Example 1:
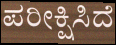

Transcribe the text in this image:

ಪರೀಕ್ಷಿಸಿದೆ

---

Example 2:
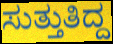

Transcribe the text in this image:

ಸುತ್ತುತಿದ್ದ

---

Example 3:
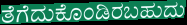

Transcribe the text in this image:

ತೆಗೆದುಕೊಂಡಿರಬಹುದು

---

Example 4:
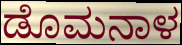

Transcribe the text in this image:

ಡೊಮನಾಳ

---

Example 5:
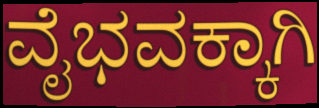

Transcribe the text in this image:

ವೈಭವಕ್ಕಾಗಿ